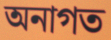
অনাগত